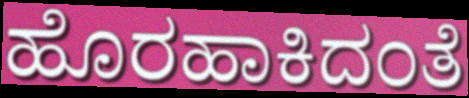
ಹೊರಹಾಕಿದಂತೆ